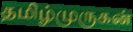
தமிழ்முருகன்